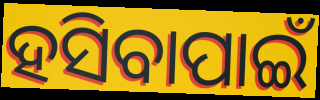
ହସିବାପାଇଁ